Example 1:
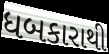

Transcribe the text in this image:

ધબકારાથી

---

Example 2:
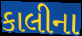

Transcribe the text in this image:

કાલીના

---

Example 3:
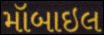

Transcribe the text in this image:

મૉબાઇલ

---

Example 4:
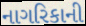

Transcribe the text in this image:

નાગરિકાની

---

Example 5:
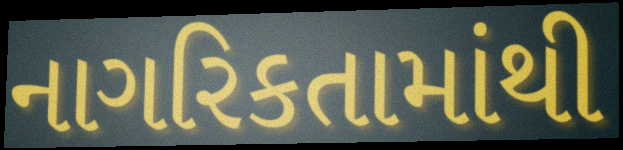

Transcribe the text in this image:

નાગરિકતામાંથી